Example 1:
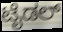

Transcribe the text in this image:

ಟೈಡಲ್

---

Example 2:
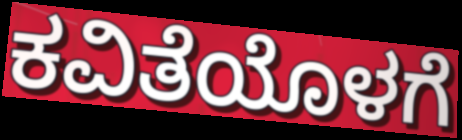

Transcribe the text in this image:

ಕವಿತೆಯೊಳಗೆ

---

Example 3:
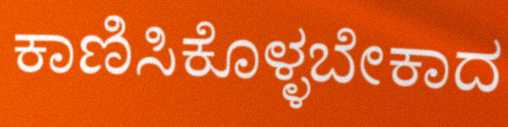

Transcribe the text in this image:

ಕಾಣಿಸಿಕೊಳ್ಳಬೇಕಾದ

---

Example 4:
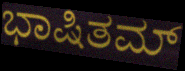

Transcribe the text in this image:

ಭಾಷಿತಮ್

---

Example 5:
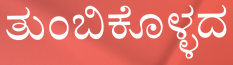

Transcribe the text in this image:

ತುಂಬಿಕೊಳ್ಳದ